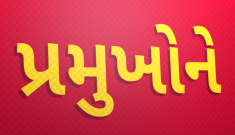
પ્રમુખોને